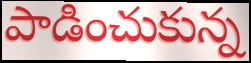
పాడించుకున్న